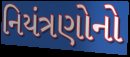
નિયંત્રણોનો